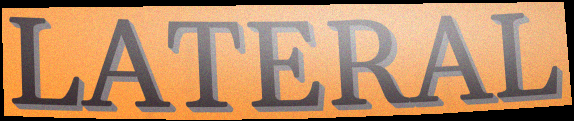
LATERAL